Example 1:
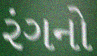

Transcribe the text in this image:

રંગનો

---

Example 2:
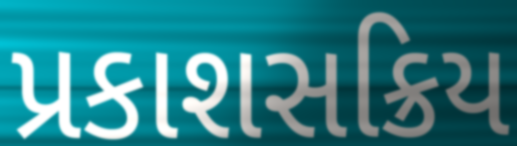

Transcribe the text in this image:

પ્રકાશસક્રિય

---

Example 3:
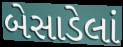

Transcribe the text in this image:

બેસાડેલાં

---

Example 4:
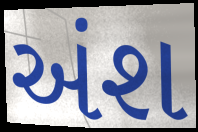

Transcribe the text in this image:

અંશ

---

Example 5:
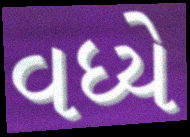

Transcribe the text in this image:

વધ્યે